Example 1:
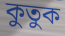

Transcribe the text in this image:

কুতুক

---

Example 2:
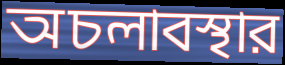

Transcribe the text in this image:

অচলাবস্থার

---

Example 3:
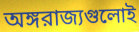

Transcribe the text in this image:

অঙ্গরাজ্যগুলোই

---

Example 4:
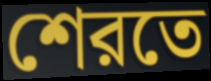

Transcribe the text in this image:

শেরতে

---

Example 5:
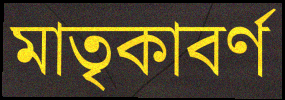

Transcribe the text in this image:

মাতৃকাবর্ণ